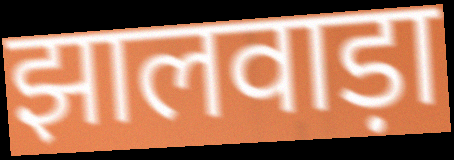
झालवाड़ा